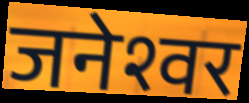
जनेश्वर